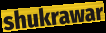
shukrawar